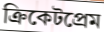
ক্রিকেটপ্রেম